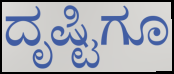
ದೃಷ್ಟಿಗೂ